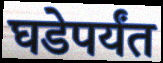
घडेपर्यंत